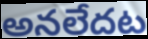
అనలేదట